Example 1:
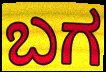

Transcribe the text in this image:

ಬಗ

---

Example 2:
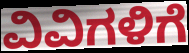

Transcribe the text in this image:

ವಿವಿಗಳಿಗೆ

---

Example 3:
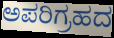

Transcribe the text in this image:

ಅಪರಿಗ್ರಹದ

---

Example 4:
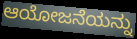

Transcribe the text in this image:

ಆಯೋಜನೆಯನ್ನು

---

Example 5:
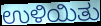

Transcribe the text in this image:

ಉಳಿಯಿತು